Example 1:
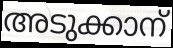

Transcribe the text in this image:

അടുക്കാന്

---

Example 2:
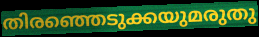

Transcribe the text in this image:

തിരഞ്ഞെടുക്കയുമരുതു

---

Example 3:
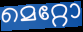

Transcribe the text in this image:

മെറ്റോ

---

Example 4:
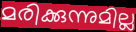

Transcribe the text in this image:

മരിക്കുന്നുമില്ല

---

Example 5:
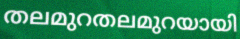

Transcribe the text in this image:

തലമുറതലമുറയായി